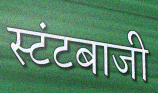
स्टंटबाजी